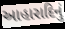
આહારાદિનું